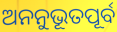
ଅନନୁଭୂତପୂର୍ବ